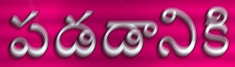
పడడానికి